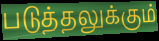
படுத்தலுக்கும்